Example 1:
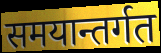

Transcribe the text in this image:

समयान्तर्गत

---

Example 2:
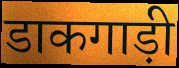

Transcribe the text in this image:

डाकगाड़ी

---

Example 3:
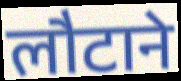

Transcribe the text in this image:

लौटाने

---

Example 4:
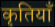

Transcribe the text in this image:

कृतियाँ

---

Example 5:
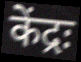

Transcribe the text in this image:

केंद्रः